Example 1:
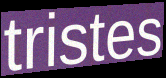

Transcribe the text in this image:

tristes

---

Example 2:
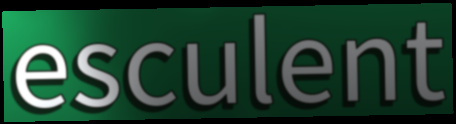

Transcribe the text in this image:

esculent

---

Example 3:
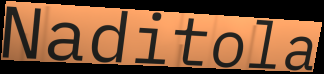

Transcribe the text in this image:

Naditola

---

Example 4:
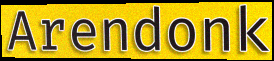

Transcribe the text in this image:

Arendonk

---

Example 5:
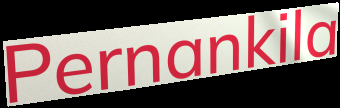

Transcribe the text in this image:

Pernankila